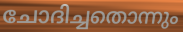
ചോദിച്ചതൊന്നും